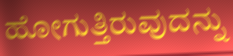
ಹೋಗುತ್ತಿರುವುದನ್ನು